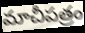
మాచీపత్రం